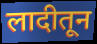
लादीतून